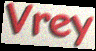
Vrey